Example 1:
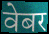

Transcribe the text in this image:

वेबर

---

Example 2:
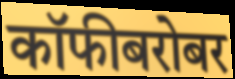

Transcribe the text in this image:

कॉफीबरोबर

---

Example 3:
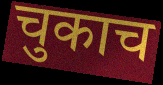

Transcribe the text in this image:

चुकाच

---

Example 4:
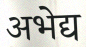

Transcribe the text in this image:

अभेद्य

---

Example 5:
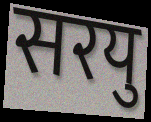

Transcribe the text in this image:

सरयु